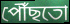
পৌঁছতো